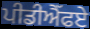
ਪੀਡੀਐੱਫਏ